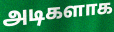
அடிகளாக